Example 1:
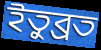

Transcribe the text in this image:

ইতুব্রত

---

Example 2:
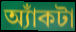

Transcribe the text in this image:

অ্যাঁকটা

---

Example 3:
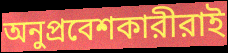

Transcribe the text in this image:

অনুপ্রবেশকারীরাই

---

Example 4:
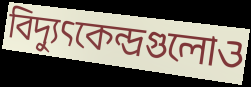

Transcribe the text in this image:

বিদ্যুৎকেন্দ্রগুলোও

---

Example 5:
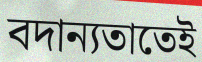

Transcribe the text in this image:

বদান্যতাতেই